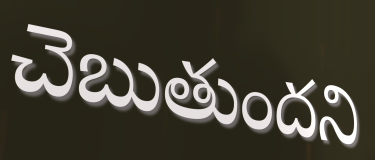
చెబుతుందని